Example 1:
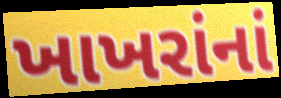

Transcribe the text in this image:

ખાખરાંનાં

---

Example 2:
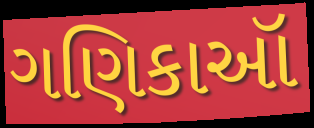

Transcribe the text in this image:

ગણિકાઑ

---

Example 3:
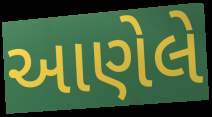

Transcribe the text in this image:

આણેલે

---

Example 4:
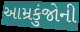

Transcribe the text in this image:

આમ્રકુંજોની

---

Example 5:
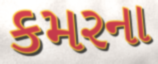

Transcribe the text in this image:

કમરના